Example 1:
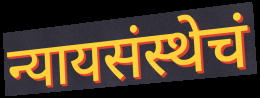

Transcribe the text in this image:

न्यायसंस्थेचं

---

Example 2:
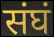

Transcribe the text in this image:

संघं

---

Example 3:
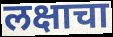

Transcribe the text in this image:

लक्षाचा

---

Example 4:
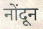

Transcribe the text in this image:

नोंदून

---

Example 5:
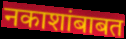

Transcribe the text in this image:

नकाशांबाबत